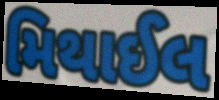
મિથાઈલ